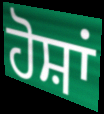
ਹੋਸ਼ਾਂ